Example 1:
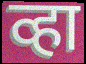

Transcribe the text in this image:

व्हा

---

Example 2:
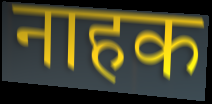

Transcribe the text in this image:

नाहक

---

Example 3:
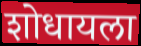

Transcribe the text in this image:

शोधायला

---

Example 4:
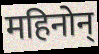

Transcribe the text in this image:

महिनोन्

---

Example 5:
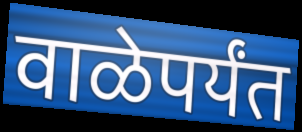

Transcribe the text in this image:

वाळेपर्यंत